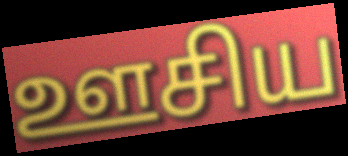
ஊசிய